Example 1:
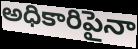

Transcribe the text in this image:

అధికారిపైనా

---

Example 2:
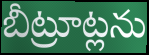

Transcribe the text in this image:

బీట్రూట్లను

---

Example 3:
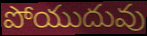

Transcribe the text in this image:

పోయుదువు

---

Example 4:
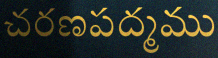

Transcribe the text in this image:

చరణపద్మము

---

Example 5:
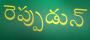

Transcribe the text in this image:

రెప్పుడున్